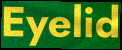
Eyelid